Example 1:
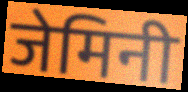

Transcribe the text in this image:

जेमिनी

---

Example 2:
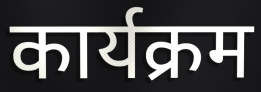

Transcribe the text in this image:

कार्यक्रम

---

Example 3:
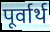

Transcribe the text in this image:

पूर्वार्थ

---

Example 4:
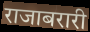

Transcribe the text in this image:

राजाबरारी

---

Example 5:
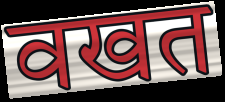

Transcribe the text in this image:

वखत